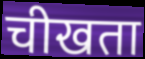
चीखता